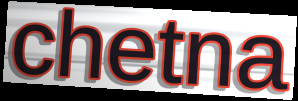
chetna